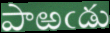
పాఱఁడు